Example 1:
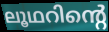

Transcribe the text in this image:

ലൂഥറിന്റെ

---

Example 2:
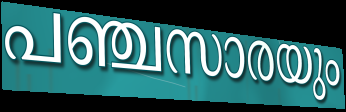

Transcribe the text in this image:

പഞ്ചസാരയും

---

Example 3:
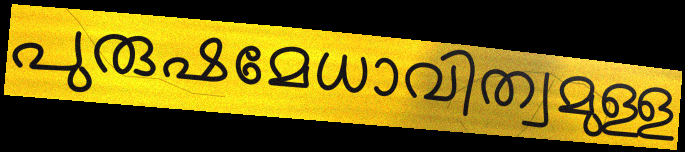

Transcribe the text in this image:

പുരുഷമേധാവിത്വമുള്ള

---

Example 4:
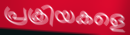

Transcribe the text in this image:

പ്രക്രിയകളെ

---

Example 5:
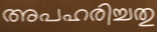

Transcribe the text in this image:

അപഹരിച്ചതു